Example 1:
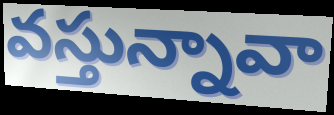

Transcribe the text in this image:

వస్తున్నావా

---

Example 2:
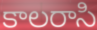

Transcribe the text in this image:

కాలరాసి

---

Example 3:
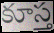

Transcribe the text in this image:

కూస్త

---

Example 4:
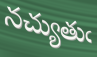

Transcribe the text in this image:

నచ్యుతుఁ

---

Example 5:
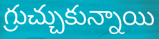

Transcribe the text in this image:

గ్రుచ్చుకున్నాయి